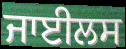
ਜਾਈਲਸ